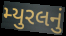
મ્યુરલનું